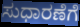
ಸುಧಾರಣೆಗೆ